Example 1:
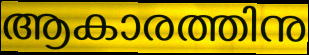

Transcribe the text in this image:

ആകാരത്തിനു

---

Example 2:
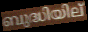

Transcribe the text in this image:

ബുദ്ധിയില്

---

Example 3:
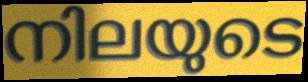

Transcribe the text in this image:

നിലയുടെ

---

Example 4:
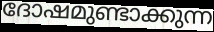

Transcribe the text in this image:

ദോഷമുണ്ടാക്കുന്ന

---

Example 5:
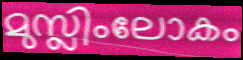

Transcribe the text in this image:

മുസ്ലിംലോകം